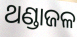
ଥଣ୍ଡାଜଳ